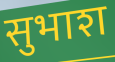
सुभाश